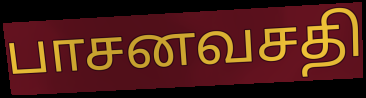
பாசனவசதி